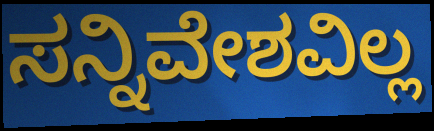
ಸನ್ನಿವೇಶವಿಲ್ಲ